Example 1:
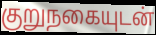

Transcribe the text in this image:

குறுநகையுடன்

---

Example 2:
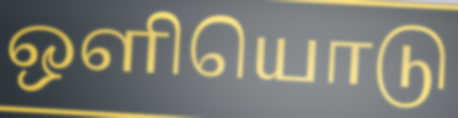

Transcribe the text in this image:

ஒளியொடு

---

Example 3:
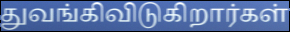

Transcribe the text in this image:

துவங்கிவிடுகிறார்கள்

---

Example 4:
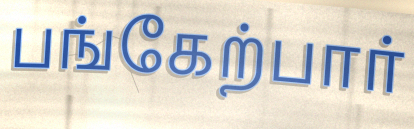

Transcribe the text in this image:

பங்கேற்பார்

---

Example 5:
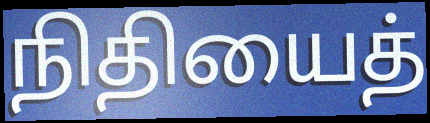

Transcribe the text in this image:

நிதியைத்